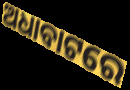
ଅଧାବାଟରେ